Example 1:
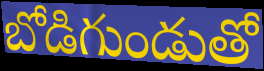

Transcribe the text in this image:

బోడిగుండుతో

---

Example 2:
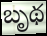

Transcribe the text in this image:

బృథ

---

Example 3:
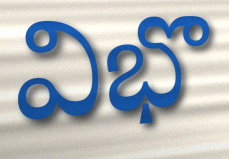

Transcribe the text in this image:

విభొ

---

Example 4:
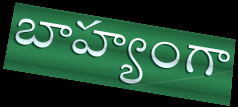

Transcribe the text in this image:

బాహ్యంగా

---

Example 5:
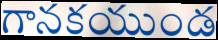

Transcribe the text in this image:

గానకయుండ